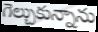
గెల్చుకున్నాను